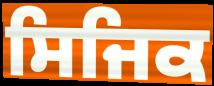
ਸਿਜਿਕ